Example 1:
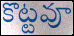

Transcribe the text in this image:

కొట్టవూ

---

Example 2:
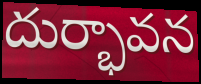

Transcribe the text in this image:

దుర్భావన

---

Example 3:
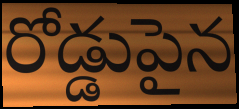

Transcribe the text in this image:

రోడ్డుపైన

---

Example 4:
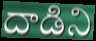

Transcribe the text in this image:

దాడిని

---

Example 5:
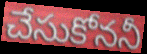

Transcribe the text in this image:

చేసుకోననీ